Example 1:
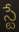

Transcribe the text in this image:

స్టే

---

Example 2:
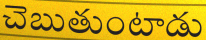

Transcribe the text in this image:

చెబుతుంటాడు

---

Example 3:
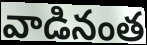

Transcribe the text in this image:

వాడినంత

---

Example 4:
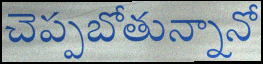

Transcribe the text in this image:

చెప్పబోతున్నానో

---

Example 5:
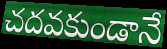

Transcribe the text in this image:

చదవకుండానే